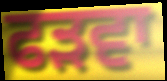
ਫੜਵਾ